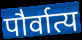
पौर्वात्य